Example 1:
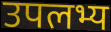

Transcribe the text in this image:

उपलभ्य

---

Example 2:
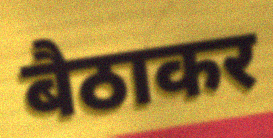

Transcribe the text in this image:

बैठाकर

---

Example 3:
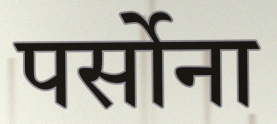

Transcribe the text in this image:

पर्सोना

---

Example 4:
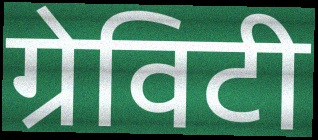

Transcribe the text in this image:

ग्रेविटी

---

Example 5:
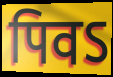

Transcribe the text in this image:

पिवऽ